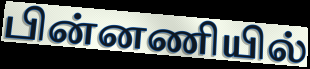
பின்னணியில்